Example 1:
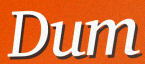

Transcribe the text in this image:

Dum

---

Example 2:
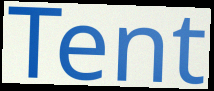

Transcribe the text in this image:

Tent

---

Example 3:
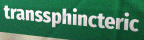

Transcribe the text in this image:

transsphincteric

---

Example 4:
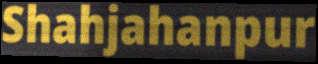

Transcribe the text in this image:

Shahjahanpur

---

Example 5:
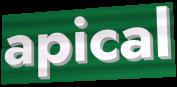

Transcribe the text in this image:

apical